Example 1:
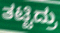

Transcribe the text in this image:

ತಟ್ಟಿದ್ರು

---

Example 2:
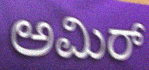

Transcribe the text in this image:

ಅಮಿರ್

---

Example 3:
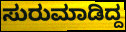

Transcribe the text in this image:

ಸುರುಮಾಡಿದ್ದ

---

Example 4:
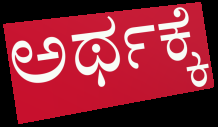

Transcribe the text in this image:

ಅರ್ಥಕ್ಕೆ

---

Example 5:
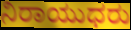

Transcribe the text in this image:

ನಿರಾಯುಧರು